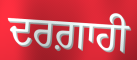
ਦਰਗ਼ਾਹੀ